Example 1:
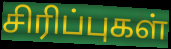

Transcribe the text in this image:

சிரிப்புகள்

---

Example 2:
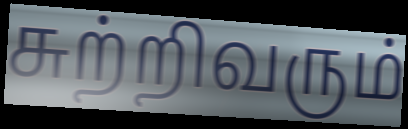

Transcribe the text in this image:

சுற்றிவரும்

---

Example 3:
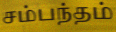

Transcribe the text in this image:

சம்பந்தம்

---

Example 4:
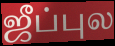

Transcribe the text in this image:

ஜீப்புல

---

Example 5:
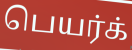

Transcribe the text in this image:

பெயர்க்